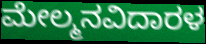
ಮೇಲ್ಮನವಿದಾರಳ